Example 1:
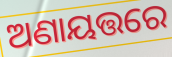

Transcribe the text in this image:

ଅଣାୟତ୍ତରେ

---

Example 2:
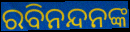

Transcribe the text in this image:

ରବିନନ୍ଦନଙ୍କ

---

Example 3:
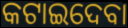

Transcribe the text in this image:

କଟାଇଦେବା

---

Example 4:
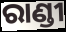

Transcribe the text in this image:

ରାଣ୍ଡୀ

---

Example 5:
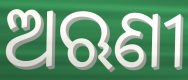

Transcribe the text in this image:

ଅଋଣୀ